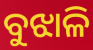
ବୁଝାଳି